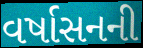
વર્ષાસનની